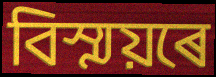
বিস্ময়ৰে